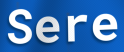
Sere